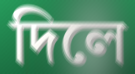
দিলে